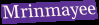
Mrinmayee